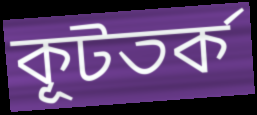
কূটতর্ক